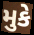
મુકે